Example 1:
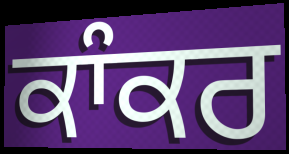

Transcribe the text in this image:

ਕਾੰਕਰ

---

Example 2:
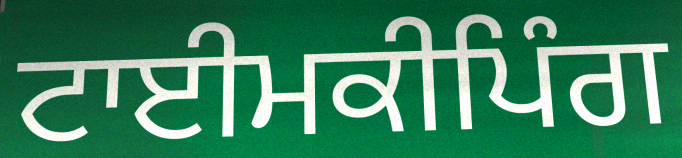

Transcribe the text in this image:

ਟਾਈਮਕੀਪਿੰਗ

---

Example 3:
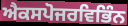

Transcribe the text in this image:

ਐਕਸਪੋਜਰਵਿਭਿੰਨ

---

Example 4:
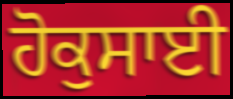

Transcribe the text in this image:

ਹੋਕੁਸਾਈ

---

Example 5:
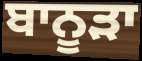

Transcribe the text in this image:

ਬਾਨੂੜਾ